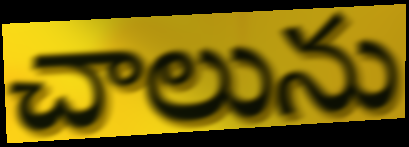
చాలును